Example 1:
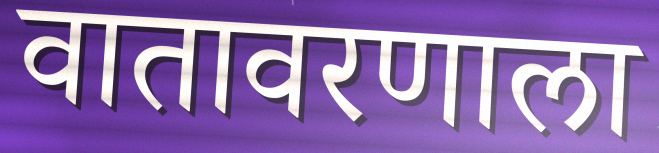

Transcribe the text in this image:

वातावरणाला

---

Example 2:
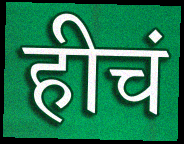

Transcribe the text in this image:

हीचं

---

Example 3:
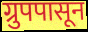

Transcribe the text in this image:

ग्रुपपासून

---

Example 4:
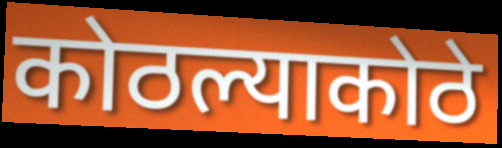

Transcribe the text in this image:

कोठल्याकोठे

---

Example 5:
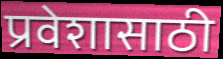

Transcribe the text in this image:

प्रवेशासाठी